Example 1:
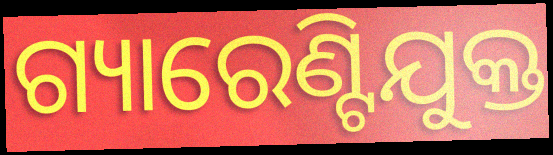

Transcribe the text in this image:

ଗ୍ୟାରେଣ୍ଟିଯୁକ୍ତ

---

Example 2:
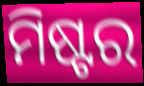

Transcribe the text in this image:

ମିଷ୍ଟର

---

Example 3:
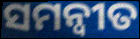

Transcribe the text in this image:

ସମନ୍ଵୀତ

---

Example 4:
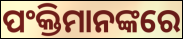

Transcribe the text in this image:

ପଂକ୍ତିମାନଙ୍କରେ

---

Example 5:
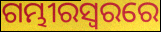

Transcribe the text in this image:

ଗମ୍ଭୀରସ୍ୱରରେ